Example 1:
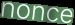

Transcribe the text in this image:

nonce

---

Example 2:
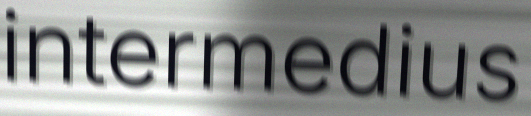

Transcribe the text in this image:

intermedius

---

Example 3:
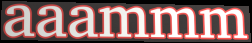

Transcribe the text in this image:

aaammm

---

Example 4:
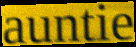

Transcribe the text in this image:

auntie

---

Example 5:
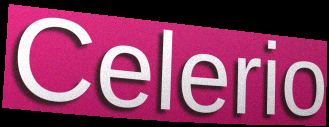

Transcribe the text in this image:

Celerio